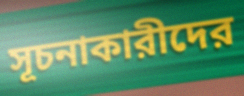
সূচনাকারীদের